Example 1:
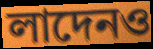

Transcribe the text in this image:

লাদেনও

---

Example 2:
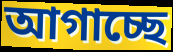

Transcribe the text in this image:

আগাচ্ছে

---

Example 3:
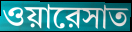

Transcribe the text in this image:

ওয়ারেসাত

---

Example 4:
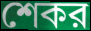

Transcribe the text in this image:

শেকর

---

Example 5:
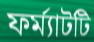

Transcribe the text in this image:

ফর্ম্যাটটি